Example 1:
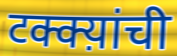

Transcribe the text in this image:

टक्क्य़ांची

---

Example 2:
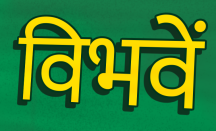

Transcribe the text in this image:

विभवें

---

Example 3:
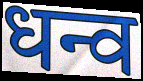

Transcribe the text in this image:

धन्व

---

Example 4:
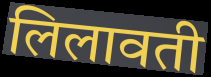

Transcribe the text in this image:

लिलावती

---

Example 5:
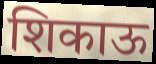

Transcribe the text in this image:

शिकाऊ